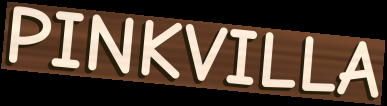
PINKVILLA